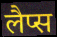
लैप्स